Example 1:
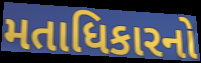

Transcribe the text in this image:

મતાધિકારનો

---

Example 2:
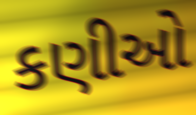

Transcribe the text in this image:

કણીઓ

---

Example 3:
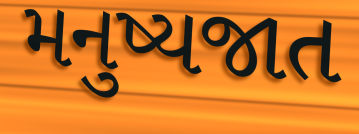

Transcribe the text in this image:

મનુષ્યજાત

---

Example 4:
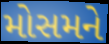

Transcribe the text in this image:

મોસમને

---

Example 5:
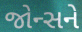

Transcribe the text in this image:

જોન્સને